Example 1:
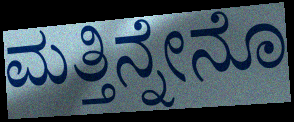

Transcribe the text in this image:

ಮತ್ತಿನ್ನೇನೊ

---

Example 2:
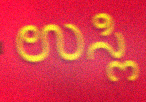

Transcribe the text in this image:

ಉಸ್ಲಿ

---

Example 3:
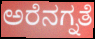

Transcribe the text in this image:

ಅರೆನಗ್ನತೆ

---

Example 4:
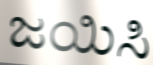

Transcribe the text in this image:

ಜಯಿಸಿ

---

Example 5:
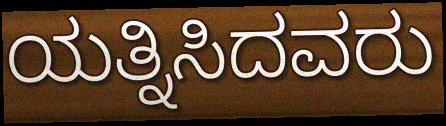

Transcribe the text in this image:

ಯತ್ನಿಸಿದವರು